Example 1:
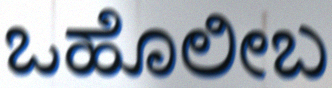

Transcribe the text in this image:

ಒಹೊಲೀಬ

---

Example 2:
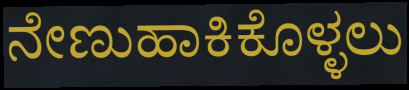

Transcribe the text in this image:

ನೇಣುಹಾಕಿಕೊಳ್ಳಲು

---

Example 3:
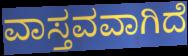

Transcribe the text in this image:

ವಾಸ್ತವವಾಗಿದೆ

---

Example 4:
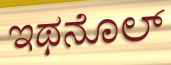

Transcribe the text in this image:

ಇಥನೊಲ್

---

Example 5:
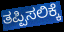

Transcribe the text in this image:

ತಪ್ಪಿಸಲಿಕ್ಕೆ